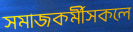
সমাজকৰ্মীসকলে